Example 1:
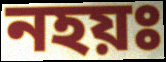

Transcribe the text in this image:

নহয়ঃ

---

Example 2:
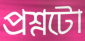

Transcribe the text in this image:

প্ৰশ্নটো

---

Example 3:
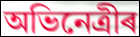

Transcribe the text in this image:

অভিনেত্ৰীৰ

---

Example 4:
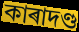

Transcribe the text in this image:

কাৰাদণ্ড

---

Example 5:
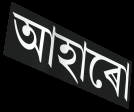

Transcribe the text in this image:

আহাৰো